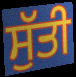
ਸੁੱਤੀ